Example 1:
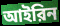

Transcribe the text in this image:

আইরিন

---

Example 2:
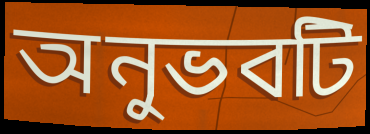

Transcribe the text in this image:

অনুভবটি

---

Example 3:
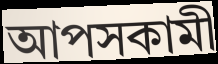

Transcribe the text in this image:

আপসকামী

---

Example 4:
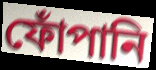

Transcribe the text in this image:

ফোঁপানি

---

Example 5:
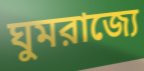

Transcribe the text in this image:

ঘুমরাজ্যে